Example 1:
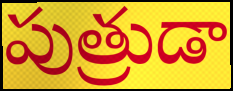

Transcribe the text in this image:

పుత్రుడా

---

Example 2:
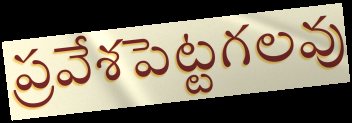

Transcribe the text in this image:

ప్రవేశపెట్టగలవు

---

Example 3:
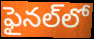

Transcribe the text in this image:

ఫైనల్‌లో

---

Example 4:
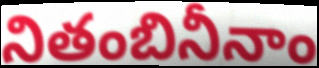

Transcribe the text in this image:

నితంబినీనాం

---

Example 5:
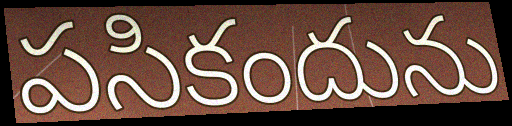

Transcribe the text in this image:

పసికందును